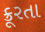
ક્રૂરતા